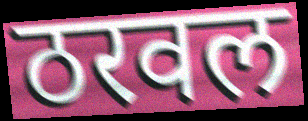
ठरवल